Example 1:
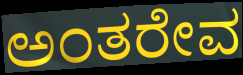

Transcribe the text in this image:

ಅಂತರೇವ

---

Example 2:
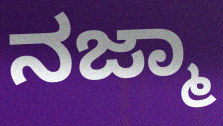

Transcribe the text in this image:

ನಜ್ಮಾ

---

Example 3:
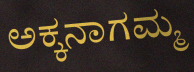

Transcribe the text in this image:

ಅಕ್ಕನಾಗಮ್ಮ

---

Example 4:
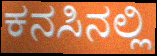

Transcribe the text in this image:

ಕನಸಿನಲ್ಲಿ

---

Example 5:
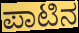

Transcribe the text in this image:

ಪಾಟಿನ